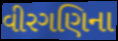
વીરગણિના